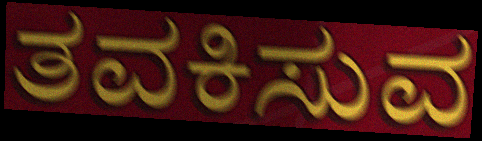
ತವಕಿಸುವ